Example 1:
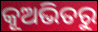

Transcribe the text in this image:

କୂଅଭିତରୁ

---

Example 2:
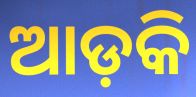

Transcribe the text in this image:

ଆଡ଼କି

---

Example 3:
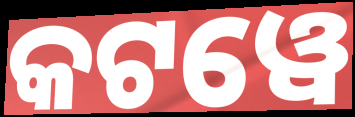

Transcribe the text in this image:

କଟୱେ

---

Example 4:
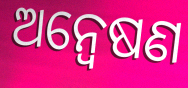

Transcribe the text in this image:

ଅନ୍ବେଷଣ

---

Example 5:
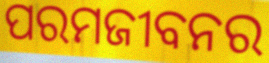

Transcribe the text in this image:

ପରମଜୀବନର